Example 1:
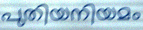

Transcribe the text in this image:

പുതിയനിയമം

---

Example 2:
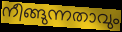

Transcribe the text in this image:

നീങ്ങുന്നതാവും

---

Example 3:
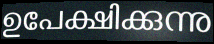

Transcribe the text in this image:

ഉപേക്ഷിക്കുന്നു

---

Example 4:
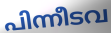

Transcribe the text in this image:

പിന്നീടവ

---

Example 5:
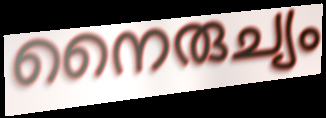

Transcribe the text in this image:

നൈരുച്യം